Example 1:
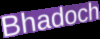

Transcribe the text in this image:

Bhadoch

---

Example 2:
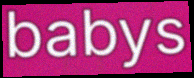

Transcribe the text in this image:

babys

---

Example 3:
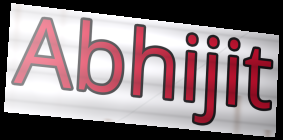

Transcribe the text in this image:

Abhijit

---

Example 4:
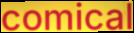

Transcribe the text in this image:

comical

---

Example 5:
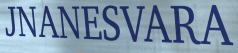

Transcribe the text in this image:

JNANESVARA